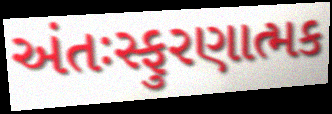
અંતઃસ્ફુરણાત્મક